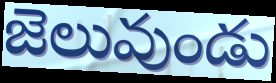
జెలువుండు